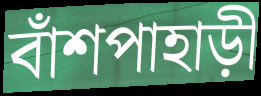
বাঁশপাহাড়ী